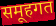
समूहगत